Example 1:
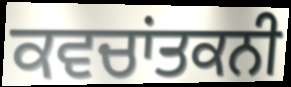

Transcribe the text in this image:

ਕਵਚਾਂਤਕਨੀ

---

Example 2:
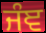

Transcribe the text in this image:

ਜੰਞ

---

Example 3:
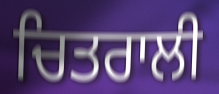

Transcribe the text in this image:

ਚਿਤਰਾਲੀ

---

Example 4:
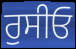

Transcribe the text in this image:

ਰੁਸੀਓ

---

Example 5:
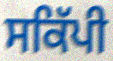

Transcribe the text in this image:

ਸਕਿੱਪੀ